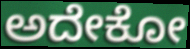
ಅದೇಕೋ